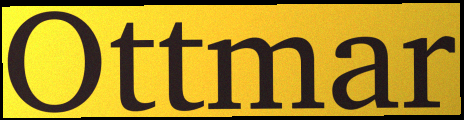
Ottmar